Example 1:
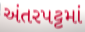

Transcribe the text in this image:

અંતરપટ્ટમાં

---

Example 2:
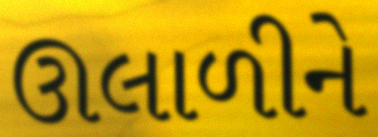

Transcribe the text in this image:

ઊલાળીને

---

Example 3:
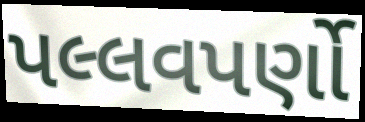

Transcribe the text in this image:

પલ્લવપર્ણો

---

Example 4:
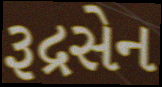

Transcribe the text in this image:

રૂદ્રસેન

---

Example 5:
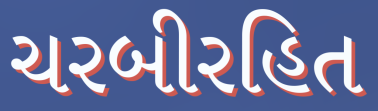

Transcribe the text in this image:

ચરબીરહિત